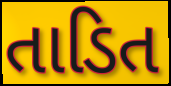
તાડિત